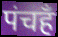
पंचहँ